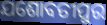
ଯଶୋବତୀପୁର